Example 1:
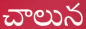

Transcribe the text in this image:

చాలున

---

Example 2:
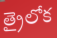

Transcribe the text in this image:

త్రైలోక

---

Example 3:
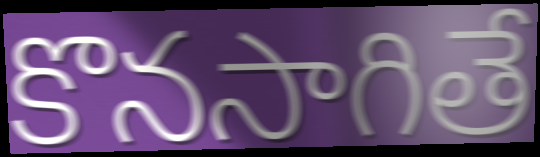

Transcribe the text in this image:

కొనసాగితే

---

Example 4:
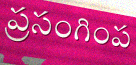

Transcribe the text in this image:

ప్రసంగింప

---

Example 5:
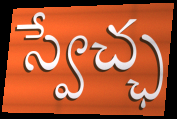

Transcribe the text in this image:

స్వేచ్ఛ